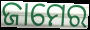
ଜାମେର